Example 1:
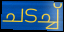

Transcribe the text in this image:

ചടച്ച്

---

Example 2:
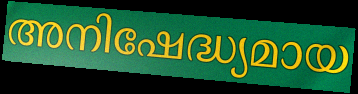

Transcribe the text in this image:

അനിഷേദ്ധ്യമായ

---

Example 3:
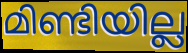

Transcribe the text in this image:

മിണ്ടിയില്ല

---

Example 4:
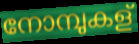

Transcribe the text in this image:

നോമ്പുകള്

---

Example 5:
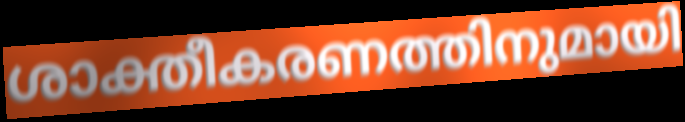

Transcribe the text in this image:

ശാക്തീകരണത്തിനുമായി